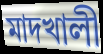
মাদখালী